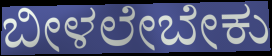
ಬೀಳಲೇಬೇಕು